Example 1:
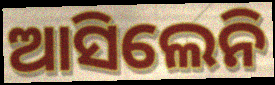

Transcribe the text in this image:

ଆସିଲେନି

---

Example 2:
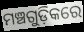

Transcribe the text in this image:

ମଞ୍ଚଗୁଡ଼ିକରେ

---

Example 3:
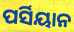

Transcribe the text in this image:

ପର୍ସିୟାନ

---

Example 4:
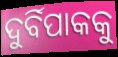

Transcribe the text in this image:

ଦୁର୍ବିପାକକୁ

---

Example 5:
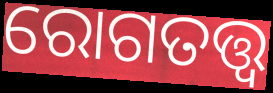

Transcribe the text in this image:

ରୋଗତତ୍ତ୍ୱ